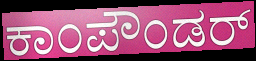
ಕಾಂಪೌಂಡರ್